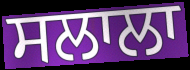
ਸਲਾਲਾ